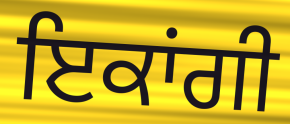
ਇਕਾਂਗੀ